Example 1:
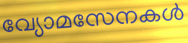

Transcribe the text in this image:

വ്യോമസേനകൾ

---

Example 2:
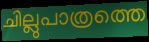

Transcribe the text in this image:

ചില്ലുപാത്രത്തെ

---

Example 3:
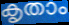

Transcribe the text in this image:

കൃതാം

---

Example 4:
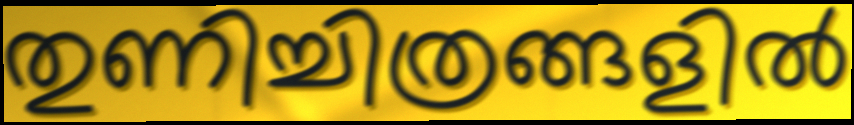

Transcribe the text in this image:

തുണിച്ചിത്രങ്ങളിൽ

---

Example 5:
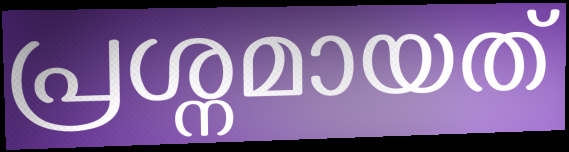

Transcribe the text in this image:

പ്രശ്നമായത്